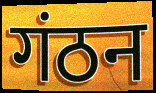
गंठन